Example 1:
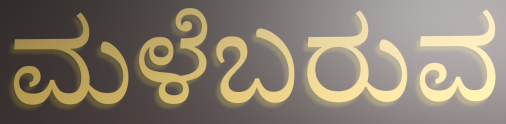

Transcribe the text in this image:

ಮಳೆಬರುವ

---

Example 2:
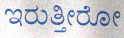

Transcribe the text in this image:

ಇರುತ್ತೀರೋ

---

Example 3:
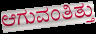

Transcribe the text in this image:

ಆಗುವಂತಿತ್ತು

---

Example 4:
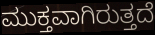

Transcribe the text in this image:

ಮುಕ್ತವಾಗಿರುತ್ತದೆ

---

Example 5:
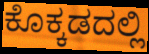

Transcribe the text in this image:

ಕೊಕ್ಕಡದಲ್ಲಿ